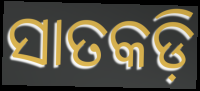
ସାତକଡ଼ି